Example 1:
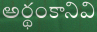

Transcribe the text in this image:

అర్థంకానివి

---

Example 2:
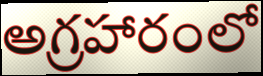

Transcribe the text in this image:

అగ్రహారంలో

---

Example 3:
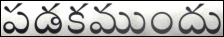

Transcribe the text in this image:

పడకముందు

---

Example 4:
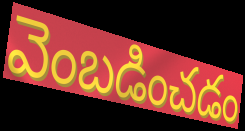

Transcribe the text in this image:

వెంబడించడం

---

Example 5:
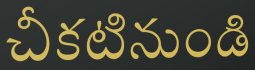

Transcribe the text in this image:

చీకటినుండి